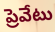
ప్రెవేటు